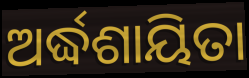
ଅର୍ଦ୍ଧଶାୟିତା